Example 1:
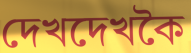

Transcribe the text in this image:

দেখদেখকৈ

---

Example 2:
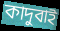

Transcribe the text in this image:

কাদুবাই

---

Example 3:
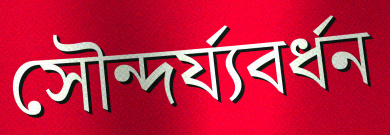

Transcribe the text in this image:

সৌন্দৰ্য্যবৰ্ধন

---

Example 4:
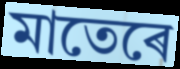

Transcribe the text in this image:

মাতেৰে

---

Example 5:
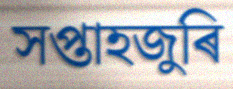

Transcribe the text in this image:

সপ্তাহজুৰি